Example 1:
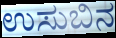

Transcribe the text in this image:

ಉಸುಬಿನ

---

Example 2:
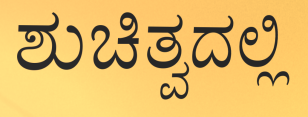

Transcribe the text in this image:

ಶುಚಿತ್ವದಲ್ಲಿ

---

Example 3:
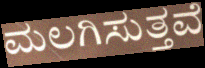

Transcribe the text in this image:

ಮಲಗಿಸುತ್ತವೆ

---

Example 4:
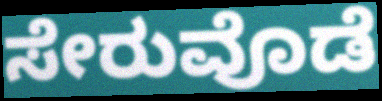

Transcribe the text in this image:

ಸೇರುವೊಡೆ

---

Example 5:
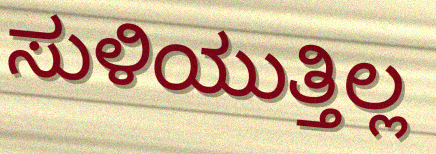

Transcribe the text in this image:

ಸುಳಿಯುತ್ತಿಲ್ಲ